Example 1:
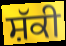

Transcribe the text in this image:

ਸ਼ੱਕੀ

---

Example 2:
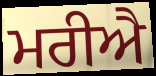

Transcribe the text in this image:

ਮਰੀਐ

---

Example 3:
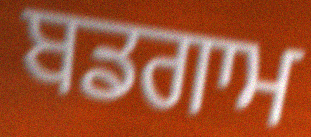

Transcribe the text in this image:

ਬਡਗਾਮ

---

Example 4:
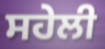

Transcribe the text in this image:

ਸਹੇਲੀ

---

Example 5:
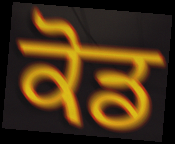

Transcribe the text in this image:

ਕੋਡ